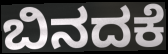
ಬಿನದಕೆ